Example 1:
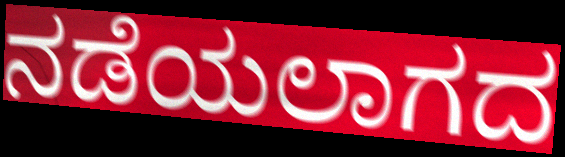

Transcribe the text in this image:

ನಡೆಯಲಾಗದ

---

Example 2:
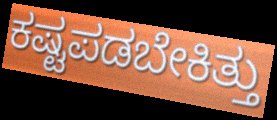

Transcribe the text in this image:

ಕಷ್ಟಪಡಬೇಕಿತ್ತು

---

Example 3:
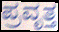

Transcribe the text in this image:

ಪ್ರವೃತ್ತ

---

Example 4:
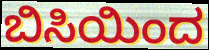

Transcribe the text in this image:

ಬಿಸಿಯಿಂದ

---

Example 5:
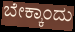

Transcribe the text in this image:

ಬೇಕ್ಕಾಂದು